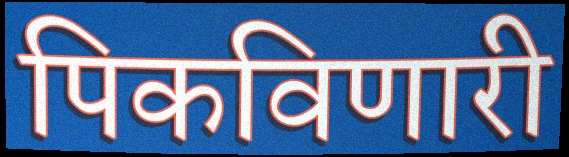
पिकविणारी